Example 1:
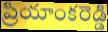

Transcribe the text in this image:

ప్రియాంకరెడ్డి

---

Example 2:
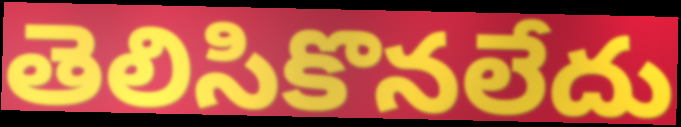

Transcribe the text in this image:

తెలిసికొనలేదు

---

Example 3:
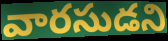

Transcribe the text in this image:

వారసుడని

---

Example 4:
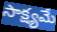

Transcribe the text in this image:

సాక్ష్యమే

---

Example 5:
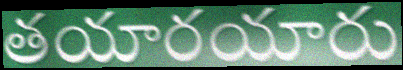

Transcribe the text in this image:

తయారయారు